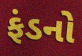
ફંડનો